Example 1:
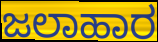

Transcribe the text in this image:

ಜಲಾಹಾರ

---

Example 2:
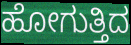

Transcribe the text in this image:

ಹೋಗುತ್ತಿದ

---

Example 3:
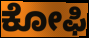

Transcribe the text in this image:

ಕೋಫಿ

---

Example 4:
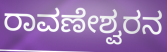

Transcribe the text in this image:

ರಾವಣೇಶ್ವರನ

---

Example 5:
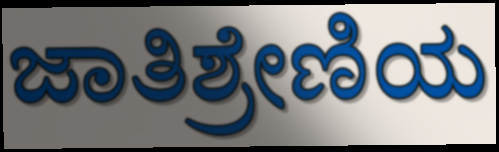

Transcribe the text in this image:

ಜಾತಿಶ್ರೇಣಿಯ